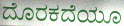
ದೊರಕದೆಯೂ